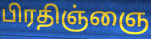
பிரதிஞ்ஞை